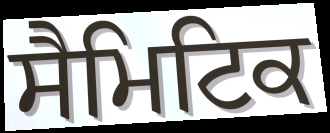
ਸੈਮਿਟਿਕ